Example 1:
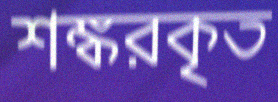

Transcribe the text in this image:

শঙ্করকৃত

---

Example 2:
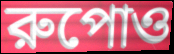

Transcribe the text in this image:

রুপোও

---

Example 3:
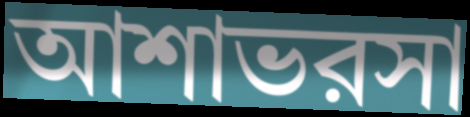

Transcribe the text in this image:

আশাভরসা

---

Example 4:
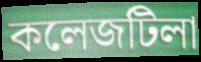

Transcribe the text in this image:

কলেজটিলা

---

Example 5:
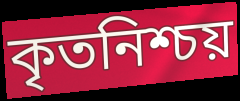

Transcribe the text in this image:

কৃতনিশ্চয়